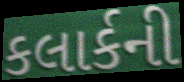
કલાર્કની